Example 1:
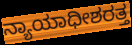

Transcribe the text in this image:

ನ್ಯಾಯಾಧೀಶರತ್ತ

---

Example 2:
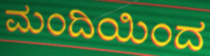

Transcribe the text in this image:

ಮಂದಿಯಿಂದ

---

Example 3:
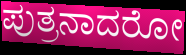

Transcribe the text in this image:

ಪುತ್ರನಾದರೋ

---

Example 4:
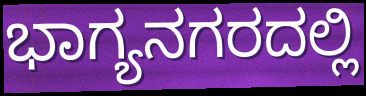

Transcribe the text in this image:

ಭಾಗ್ಯನಗರದಲ್ಲಿ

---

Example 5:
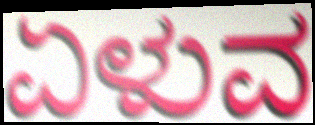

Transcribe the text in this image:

ಏಳುವ